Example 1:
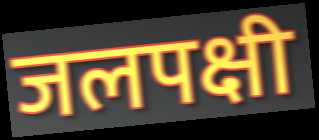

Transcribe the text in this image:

जलपक्षी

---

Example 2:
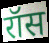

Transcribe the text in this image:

रॉस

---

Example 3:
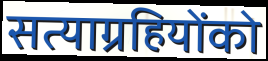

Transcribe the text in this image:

सत्याग्रहियोंको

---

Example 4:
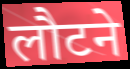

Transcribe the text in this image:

लौटने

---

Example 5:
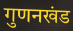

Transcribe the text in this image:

गुणनखंड